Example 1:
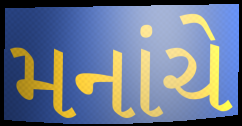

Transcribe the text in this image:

મનાંચે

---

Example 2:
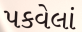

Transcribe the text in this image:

પકવેલાં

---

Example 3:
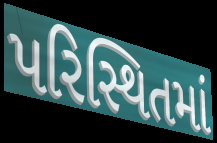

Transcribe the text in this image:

પરિસ્થિતમાં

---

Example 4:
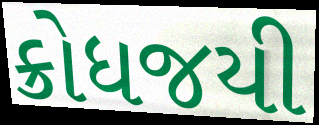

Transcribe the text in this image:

ક્રોધજયી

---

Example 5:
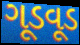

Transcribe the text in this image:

ગૂડવૂડ